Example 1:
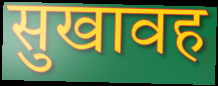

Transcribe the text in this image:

सुखावह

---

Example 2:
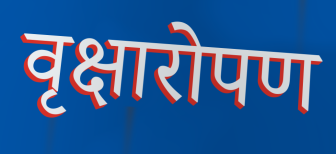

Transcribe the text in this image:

वृक्षारोपण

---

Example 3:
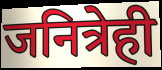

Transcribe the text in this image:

जनित्रेही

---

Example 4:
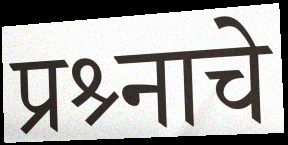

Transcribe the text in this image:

प्रश्र्नाचे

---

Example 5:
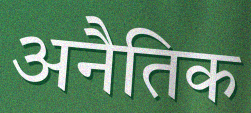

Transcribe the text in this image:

अनैतिक